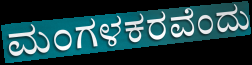
ಮಂಗಳಕರವೆಂದು